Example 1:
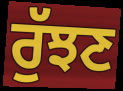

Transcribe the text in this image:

ਰੁੱਝਣ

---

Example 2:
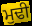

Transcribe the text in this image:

ਮੁਢੀ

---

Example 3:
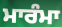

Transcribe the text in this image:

ਮਾਰੰਮਾ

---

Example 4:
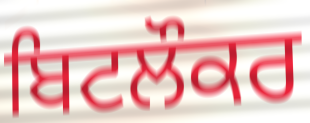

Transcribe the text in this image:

ਬਿਟਲੌਕਰ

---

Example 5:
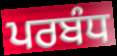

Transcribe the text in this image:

ਪਰਬੰਧ